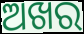
ଅଖର